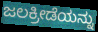
ಜಲಕ್ರೀಡೆಯನ್ನು